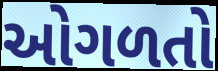
ઓગળતો